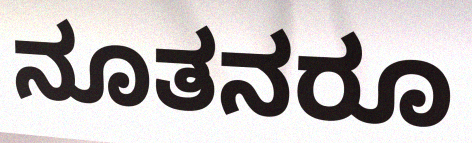
ನೂತನರೂ